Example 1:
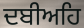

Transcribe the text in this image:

ਦਬੀਅਹਿ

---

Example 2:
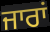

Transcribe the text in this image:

ਜਾਰਾਂ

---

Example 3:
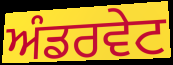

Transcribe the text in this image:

ਅੰਡਰਵੇਟ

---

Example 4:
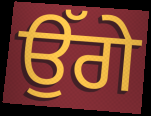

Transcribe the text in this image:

ਉੱਗੇ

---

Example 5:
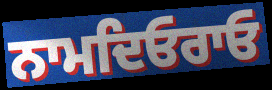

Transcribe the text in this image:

ਨਾਮਦਿਓਰਾਓ